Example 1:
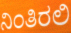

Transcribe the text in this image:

ನಿಂತಿರಲಿ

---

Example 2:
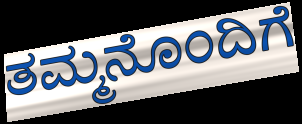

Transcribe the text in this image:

ತಮ್ಮನೊಂದಿಗೆ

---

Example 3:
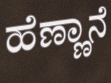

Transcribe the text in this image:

ಹೆಣ್ಣಾನೆ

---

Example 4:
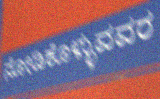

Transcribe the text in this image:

ನೋಡಿಕೊಳ್ಳುವವರ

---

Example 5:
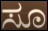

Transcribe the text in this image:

ಸೂ